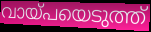
വായ്പയെടുത്ത്